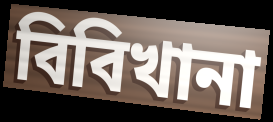
বিবিখানা